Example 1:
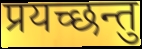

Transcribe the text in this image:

प्रयच्छन्तु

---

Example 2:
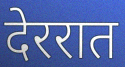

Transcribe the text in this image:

देररात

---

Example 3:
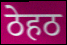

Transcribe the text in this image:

ठेहठ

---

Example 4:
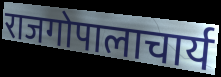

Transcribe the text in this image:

राजगोपालाचार्य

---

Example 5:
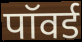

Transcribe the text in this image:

पॉवर्ड